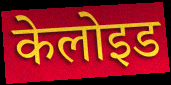
केलोइड